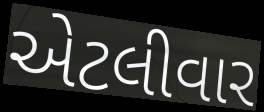
એટલીવાર